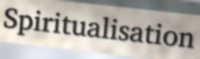
Spiritualisation